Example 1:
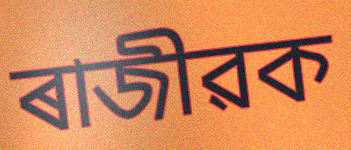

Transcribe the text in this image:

ৰাজীৱক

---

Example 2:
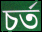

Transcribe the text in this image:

চৰ্ত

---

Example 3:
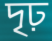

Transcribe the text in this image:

দৃঢ়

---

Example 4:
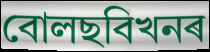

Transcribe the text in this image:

বোলছবিখনৰ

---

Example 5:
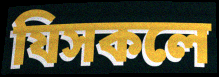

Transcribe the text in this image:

যিসকলে